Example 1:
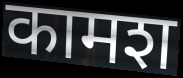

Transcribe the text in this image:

कामश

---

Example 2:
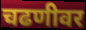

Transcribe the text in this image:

चढणीवर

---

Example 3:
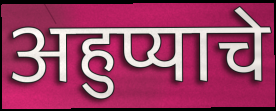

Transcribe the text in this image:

अहुप्याचे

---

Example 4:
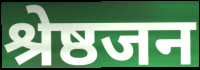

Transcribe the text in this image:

श्रेष्ठजन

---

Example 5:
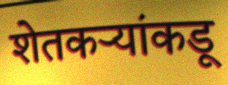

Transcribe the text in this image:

शेतकऱ्यांकडू